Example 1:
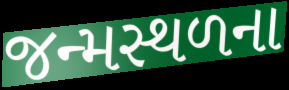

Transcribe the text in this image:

જન્મસ્થળના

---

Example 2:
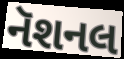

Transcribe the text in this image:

નૅશનલ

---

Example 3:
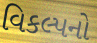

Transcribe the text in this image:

વિકલ્પનો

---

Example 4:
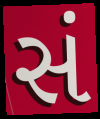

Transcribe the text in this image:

સં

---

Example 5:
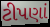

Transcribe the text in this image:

ટીપણાં